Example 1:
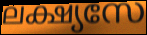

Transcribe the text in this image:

ലക്ഷ്യസേ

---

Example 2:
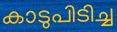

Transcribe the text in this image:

കാടുപിടിച്ച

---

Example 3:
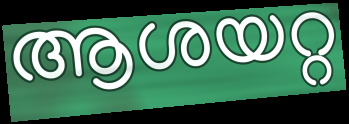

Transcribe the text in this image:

ആശയറ്റ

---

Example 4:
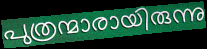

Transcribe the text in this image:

പുത്രന്മാരായിരുന്നു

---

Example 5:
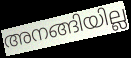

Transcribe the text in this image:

അനങ്ങിയില്ല